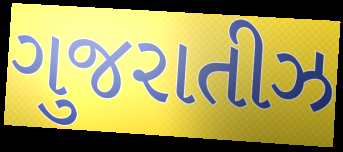
ગુજરાતીઝ